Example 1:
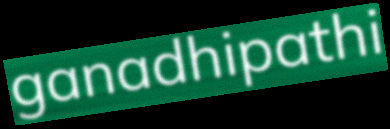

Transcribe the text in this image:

ganadhipathi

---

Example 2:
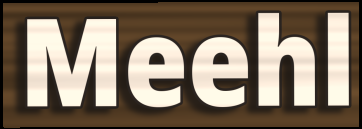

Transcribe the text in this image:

Meehl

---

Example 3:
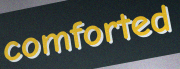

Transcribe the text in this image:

comforted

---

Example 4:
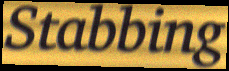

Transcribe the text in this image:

Stabbing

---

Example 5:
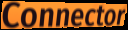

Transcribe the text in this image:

Connector